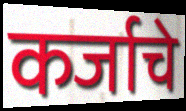
कर्जाचे